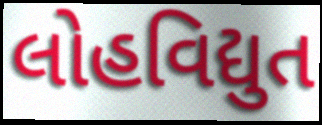
લોહવિદ્યુત